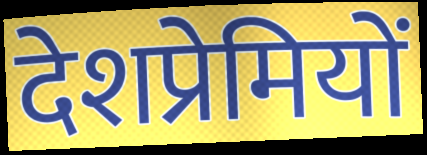
देशप्रेमियों